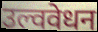
उल्ववेधन